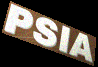
PSIA